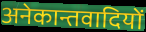
अनेकान्तवादियों